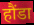
हौंडा